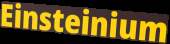
Einsteinium